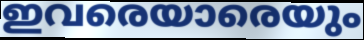
ഇവരെയാരെയും